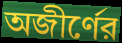
অজীর্ণের